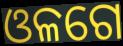
ଓଳଗେ